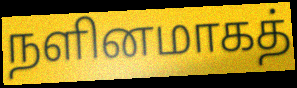
நளினமாகத்